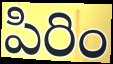
పిరిం